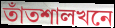
তাঁতশালখনে